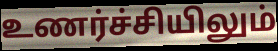
உணர்ச்சியிலும்